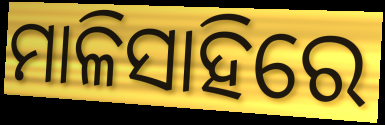
ମାଳିସାହିରେ